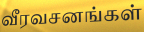
வீரவசனங்கள்